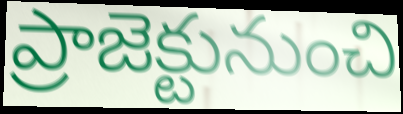
ప్రాజెక్టునుంచి